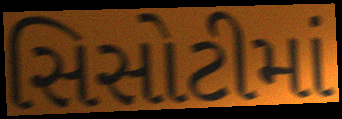
સિસોટીમાં